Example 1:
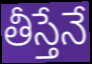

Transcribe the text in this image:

తీస్తేనే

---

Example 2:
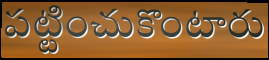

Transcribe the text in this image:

పట్టించుకొంటారు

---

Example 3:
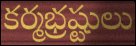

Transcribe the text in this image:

కర్మభ్రష్టులు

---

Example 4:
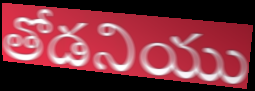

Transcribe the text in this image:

తోడనియు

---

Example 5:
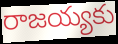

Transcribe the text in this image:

రాజయ్యకు